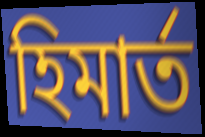
হিমার্ত